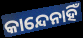
କାନ୍ଦେନାହିଁ